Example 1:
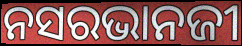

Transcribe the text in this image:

ନସରଭାନଜୀ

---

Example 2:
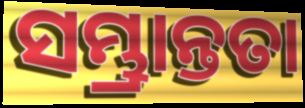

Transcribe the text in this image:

ସମ୍ଭ୍ରାନ୍ତତା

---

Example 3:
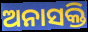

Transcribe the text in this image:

ଅନାସକ୍ତି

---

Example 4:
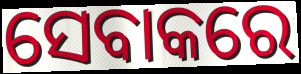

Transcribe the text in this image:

ସେବାକରେ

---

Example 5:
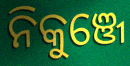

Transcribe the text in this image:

ନିକୁଞ୍ଜେ